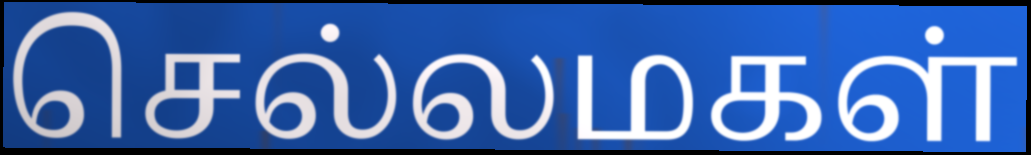
செல்லமகள்